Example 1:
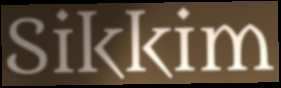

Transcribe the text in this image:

Sikkim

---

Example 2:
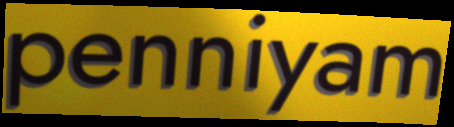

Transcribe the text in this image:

penniyam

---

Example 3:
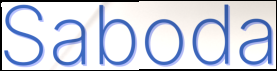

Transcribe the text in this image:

Saboda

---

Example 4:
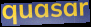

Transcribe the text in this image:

quasar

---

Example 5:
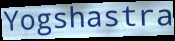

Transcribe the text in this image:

Yogshastra